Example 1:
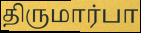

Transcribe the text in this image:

திருமார்பா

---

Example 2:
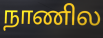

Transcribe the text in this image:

நாணில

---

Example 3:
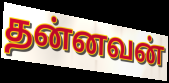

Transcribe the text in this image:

தன்னவன்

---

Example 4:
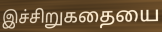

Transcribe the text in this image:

இச்சிறுகதையை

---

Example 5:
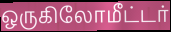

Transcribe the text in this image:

ஒருகிலோமீட்டர்